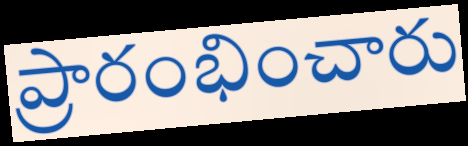
ప్రారంభించారు